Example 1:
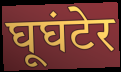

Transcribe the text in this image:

घूघंटेर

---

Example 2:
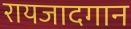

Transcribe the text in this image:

रायजादगान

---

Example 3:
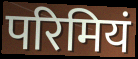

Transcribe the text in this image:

परिमियं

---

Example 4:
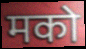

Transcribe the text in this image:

मको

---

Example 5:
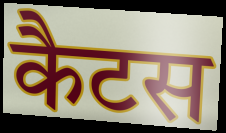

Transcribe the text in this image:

कैटस